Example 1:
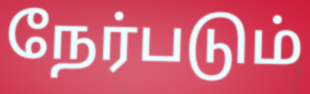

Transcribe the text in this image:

நேர்படும்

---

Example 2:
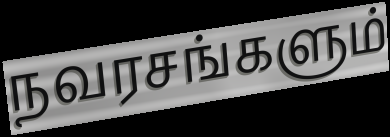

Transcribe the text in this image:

நவரசங்களும்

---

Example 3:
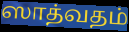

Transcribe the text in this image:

ஸாத்வதம்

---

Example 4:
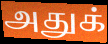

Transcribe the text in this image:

அதுக்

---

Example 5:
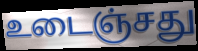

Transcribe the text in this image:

உடைஞ்சது